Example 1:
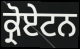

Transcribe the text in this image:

ਕ੍ਰੋਏਟਨ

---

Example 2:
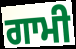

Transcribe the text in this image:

ਗਾਮੀ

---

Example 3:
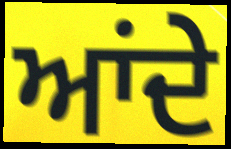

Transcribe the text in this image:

ਆਂਦੇ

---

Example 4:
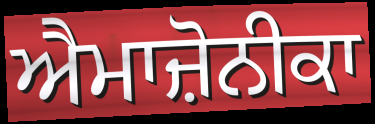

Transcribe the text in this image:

ਐਮਾਜ਼ੋਨੀਕਾ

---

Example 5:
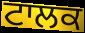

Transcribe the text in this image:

ਟਾਲਕ